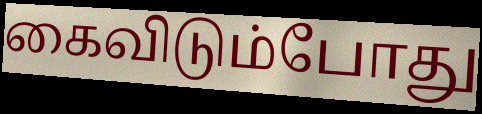
கைவிடும்போது